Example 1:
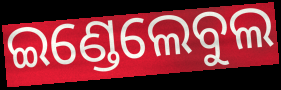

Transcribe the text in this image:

ଇଣ୍ଡେଲେବୁଲ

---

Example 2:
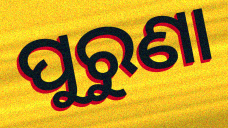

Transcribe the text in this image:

ପୁରୁଣା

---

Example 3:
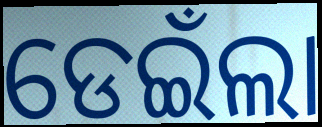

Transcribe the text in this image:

ଡେଇଁଲା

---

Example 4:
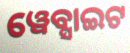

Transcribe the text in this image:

ୱେବ୍ସାଇଟ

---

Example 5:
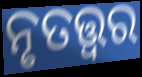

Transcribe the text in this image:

ନୃତତ୍ତ୍ଵର